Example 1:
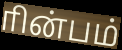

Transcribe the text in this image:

ரின்பம்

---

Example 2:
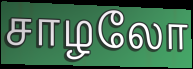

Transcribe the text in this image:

சாழலோ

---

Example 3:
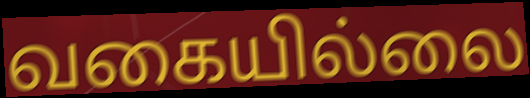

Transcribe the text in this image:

வகையில்லை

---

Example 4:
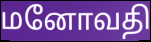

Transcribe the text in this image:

மனோவதி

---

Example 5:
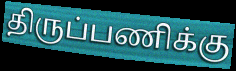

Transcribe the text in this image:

திருப்பணிக்கு